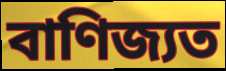
বাণিজ্যত